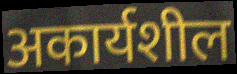
अकार्यशील